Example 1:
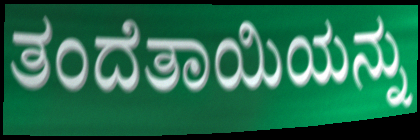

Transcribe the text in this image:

ತಂದೆತಾಯಿಯನ್ನು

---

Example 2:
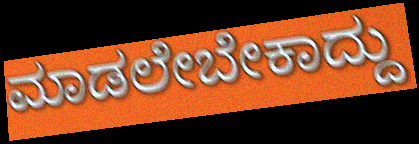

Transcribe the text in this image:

ಮಾಡಲೇಬೇಕಾದ್ದು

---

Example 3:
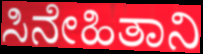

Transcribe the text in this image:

ಸಿನೇಹಿತಾನಿ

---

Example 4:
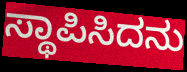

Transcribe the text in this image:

ಸ್ಥಾಪಿಸಿದನು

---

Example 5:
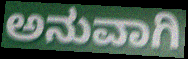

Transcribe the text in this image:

ಅನುವಾಗಿ